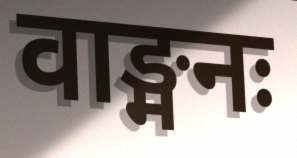
वाङ्मनः